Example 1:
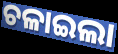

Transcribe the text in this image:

ଚଳାଇଲା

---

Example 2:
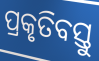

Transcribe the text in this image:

ପ୍ରକୃତିବସ୍ତୁ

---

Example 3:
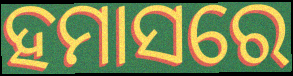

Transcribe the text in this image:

ହମାସରେ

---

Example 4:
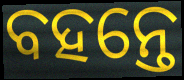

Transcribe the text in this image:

ବହନ୍ତେ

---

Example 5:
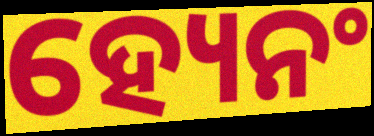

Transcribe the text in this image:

ହ୍ୟେନଂ